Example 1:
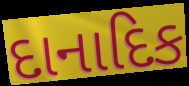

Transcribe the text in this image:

દાનાદિક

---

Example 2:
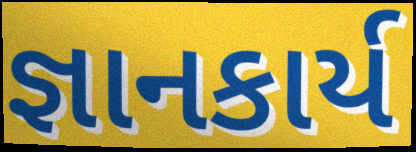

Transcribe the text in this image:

જ્ઞાનકાર્ય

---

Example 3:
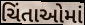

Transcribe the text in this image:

ચિંતાઓમાં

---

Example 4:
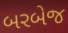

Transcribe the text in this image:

બરબેજ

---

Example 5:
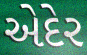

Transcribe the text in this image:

એદેર